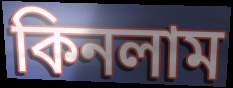
কিনলাম